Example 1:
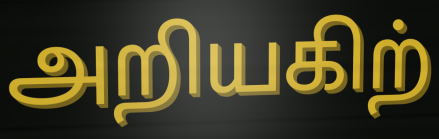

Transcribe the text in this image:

அறியகிற்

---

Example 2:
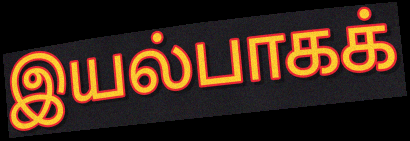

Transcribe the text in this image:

இயல்பாகக்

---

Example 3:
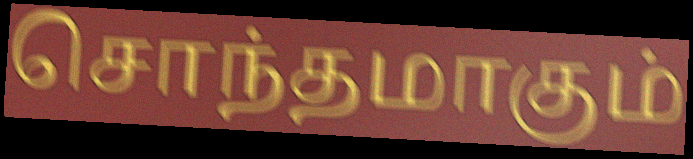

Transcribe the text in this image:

சொந்தமாகும்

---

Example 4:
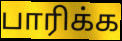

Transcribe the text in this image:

பாரிக்க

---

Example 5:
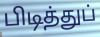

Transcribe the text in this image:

பிடித்துப்